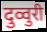
दुव्वुरी